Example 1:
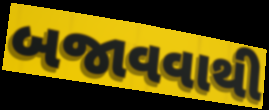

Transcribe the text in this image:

બજાવવાથી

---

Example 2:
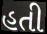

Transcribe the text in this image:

હતી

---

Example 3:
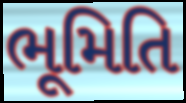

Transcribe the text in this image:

ભૂમિતિ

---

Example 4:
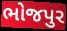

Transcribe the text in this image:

ભોજપુર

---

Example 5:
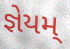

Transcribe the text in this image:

જ્ઞેયમ્